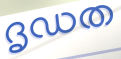
ദൃഡത